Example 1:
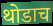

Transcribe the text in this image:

थोडाच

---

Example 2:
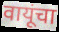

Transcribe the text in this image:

वायूंचा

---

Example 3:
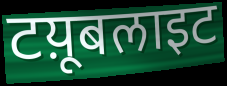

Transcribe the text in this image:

टय़ूबलाइट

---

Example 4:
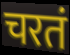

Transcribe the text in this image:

चरतं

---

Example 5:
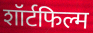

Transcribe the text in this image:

शॉर्टफिल्म